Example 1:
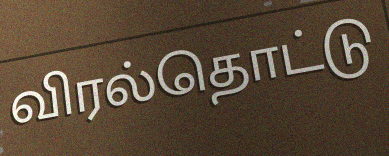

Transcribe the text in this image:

விரல்தொட்டு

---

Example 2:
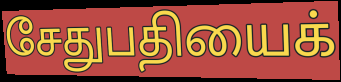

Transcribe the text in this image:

சேதுபதியைக்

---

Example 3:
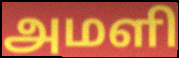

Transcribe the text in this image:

அமளி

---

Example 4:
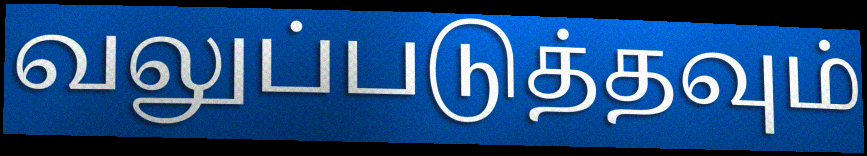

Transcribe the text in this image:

வலுப்படுத்தவும்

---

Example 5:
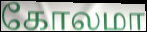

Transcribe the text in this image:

கோலமா